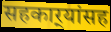
सहकार्यांसह